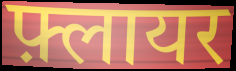
फ़्लायर